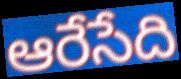
ఆరేసేది